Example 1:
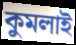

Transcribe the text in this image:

কুমলাই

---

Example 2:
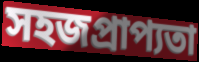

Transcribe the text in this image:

সহজপ্রাপ্যতা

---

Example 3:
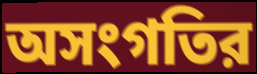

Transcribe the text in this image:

অসংগতির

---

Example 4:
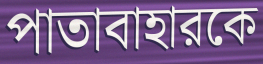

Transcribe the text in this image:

পাতাবাহারকে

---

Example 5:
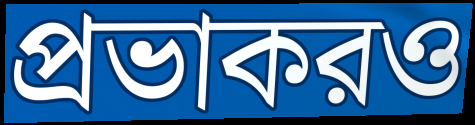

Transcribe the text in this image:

প্রভাকরও